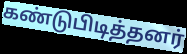
கண்டுபிடித்தனர்